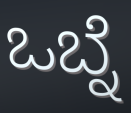
ಒಬ್ನೆ